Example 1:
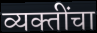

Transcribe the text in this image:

व्यक्‍तींचा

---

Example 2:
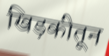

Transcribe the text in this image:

खिड़कीतून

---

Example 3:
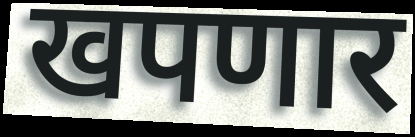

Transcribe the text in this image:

खपणार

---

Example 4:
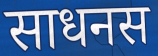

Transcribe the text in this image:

साधनस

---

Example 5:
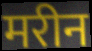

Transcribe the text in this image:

मरीन